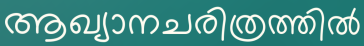
ആഖ്യാനചരിത്രത്തിൽ